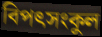
বিপৎসংকুল